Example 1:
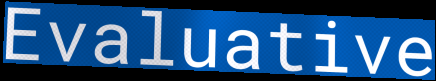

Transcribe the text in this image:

Evaluative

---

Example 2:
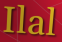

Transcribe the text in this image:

Ilal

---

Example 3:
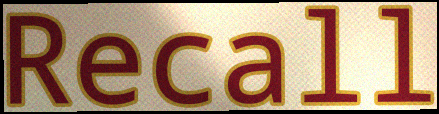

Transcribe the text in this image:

Recall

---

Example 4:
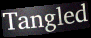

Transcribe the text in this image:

Tangled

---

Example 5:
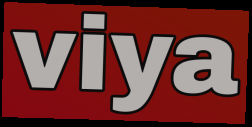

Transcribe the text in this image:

viya